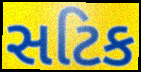
સટિક